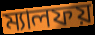
ম্যালফয়